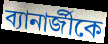
ব্যানার্জীকে